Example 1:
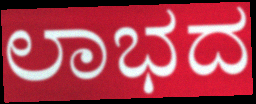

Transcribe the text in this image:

ಲಾಭದ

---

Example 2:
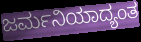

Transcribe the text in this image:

ಜರ್ಮನಿಯಾದ್ಯಂತ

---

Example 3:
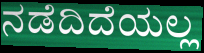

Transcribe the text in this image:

ನಡೆದಿದೆಯಲ್ಲ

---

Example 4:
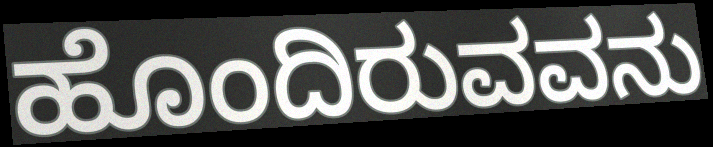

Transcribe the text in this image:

ಹೊಂದಿರುವವನು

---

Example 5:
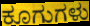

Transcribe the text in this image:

ಕೂಗುಗಳು